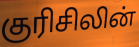
குரிசிலின்